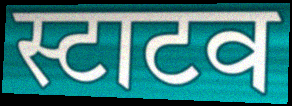
स्टाटव